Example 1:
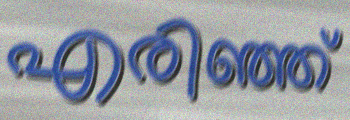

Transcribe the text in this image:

എരിഞ്ഞ്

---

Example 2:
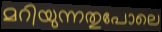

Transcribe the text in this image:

മറിയുന്നതുപോലെ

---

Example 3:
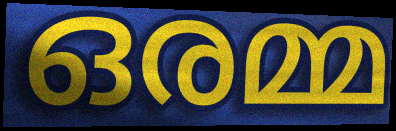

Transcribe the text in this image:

ഒരമ്മ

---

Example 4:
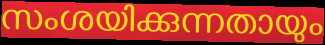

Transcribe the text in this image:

സംശയിക്കുന്നതായും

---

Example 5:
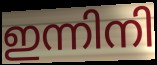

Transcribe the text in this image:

ഇന്നിനി